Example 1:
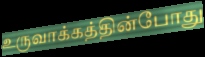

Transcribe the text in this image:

உருவாக்கத்தின்போது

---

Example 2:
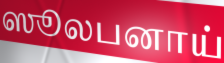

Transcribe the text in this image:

ஸூலபனாய்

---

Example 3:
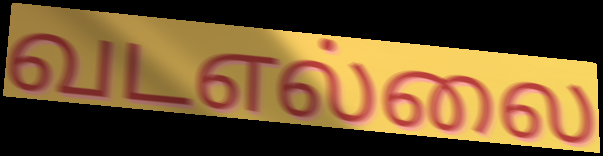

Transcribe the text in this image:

வடஎல்லை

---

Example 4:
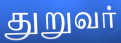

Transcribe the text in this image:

துறுவர்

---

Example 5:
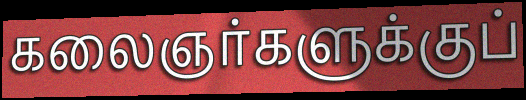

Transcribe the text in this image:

கலைஞர்களுக்குப்